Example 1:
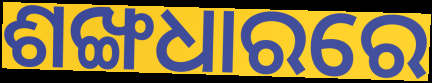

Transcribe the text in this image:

ଶଙ୍ଖଧାରରେ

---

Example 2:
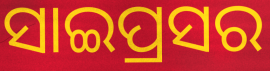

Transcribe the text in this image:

ସାଇପ୍ରସର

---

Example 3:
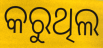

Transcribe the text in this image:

କରୁଥିଲ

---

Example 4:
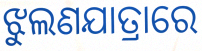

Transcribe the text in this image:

ଝୁଲଣଯାତ୍ରାରେ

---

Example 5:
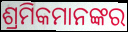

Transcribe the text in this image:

ଶ୍ରମିକମାନଙ୍କର